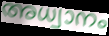
അധ്വാനം